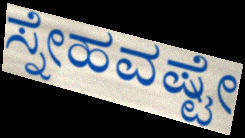
ಸ್ನೇಹವಷ್ಟೇ